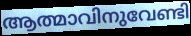
ആത്മാവിനുവേണ്ടി